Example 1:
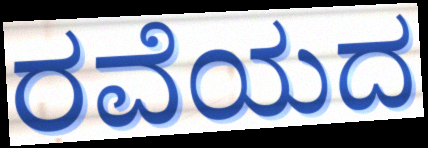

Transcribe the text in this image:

ರವೆಯದ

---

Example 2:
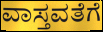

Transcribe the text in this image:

ವಾಸ್ತವತೆಗೆ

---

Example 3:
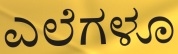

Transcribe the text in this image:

ಎಲೆಗಳೂ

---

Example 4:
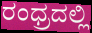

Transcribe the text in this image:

ರಂಧ್ರದಲ್ಲಿ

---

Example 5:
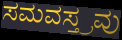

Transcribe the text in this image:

ಸಮವಸ್ತ್ರವು